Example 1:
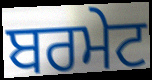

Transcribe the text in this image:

ਬਰਮੇਟ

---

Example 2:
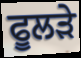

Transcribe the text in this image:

ਫੂਲੜੇ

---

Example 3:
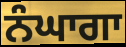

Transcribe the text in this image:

ਨੰਘਾਗਾ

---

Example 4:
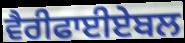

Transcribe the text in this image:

ਵੈਰੀਫਾਈਏਬਲ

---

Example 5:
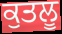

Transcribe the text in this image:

ਕੁਤਲੂ